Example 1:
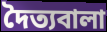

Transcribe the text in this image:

দৈত্যবালা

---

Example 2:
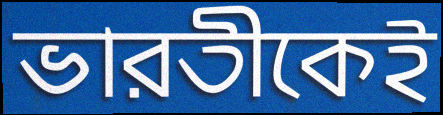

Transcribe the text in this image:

ভারতীকেই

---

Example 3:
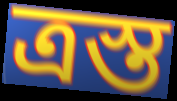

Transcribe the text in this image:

ত্রস্ত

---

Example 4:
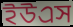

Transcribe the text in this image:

ইউএস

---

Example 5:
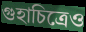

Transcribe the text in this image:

গুহাচিত্রেও